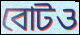
বোটও